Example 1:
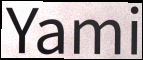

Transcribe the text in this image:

Yami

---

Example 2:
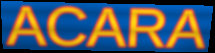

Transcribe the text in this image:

ACARA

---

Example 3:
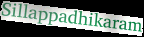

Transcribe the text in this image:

Sillappadhikaram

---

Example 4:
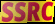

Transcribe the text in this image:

SSRC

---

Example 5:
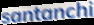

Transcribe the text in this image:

santanchi